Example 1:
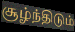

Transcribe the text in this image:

சூழ்ந்திடும்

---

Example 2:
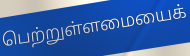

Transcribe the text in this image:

பெற்றுள்ளமையைக்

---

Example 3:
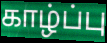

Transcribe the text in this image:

காழ்ப்பு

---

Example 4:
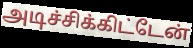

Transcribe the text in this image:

அடிச்சிக்கிட்டேன்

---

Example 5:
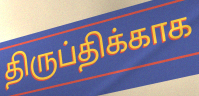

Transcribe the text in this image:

திருப்திக்காக